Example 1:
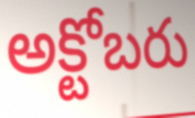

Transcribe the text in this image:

అక్టోబరు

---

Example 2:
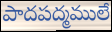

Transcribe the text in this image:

పాదపద్మములే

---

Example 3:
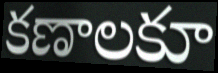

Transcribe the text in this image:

కణాలకూ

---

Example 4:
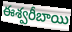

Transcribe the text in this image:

ఈశ్వరీబాయి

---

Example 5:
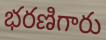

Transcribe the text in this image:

భరణిగారు